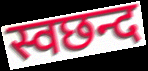
स्वछन्द